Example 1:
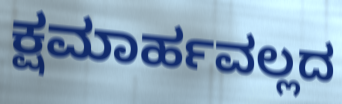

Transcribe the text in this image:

ಕ್ಷಮಾರ್ಹವಲ್ಲದ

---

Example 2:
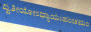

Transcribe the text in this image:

ದ್ವಿತೀಯೋಽಧ್ಯಾಯಃಪಂಚಮಂ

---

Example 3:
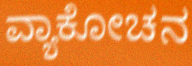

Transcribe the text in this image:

ವ್ಯಾಕೋಚನ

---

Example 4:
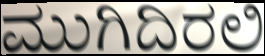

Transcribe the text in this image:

ಮುಗಿದಿರಲಿ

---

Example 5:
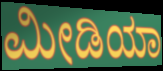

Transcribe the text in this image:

ಮೀಡಿಯಾ